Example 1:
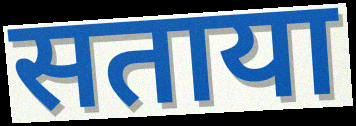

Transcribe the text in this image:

सताया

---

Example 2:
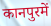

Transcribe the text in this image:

कानपुरमें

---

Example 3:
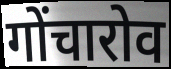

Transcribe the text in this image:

गोंचारोव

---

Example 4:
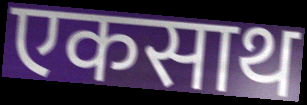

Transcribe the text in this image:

एकसाथ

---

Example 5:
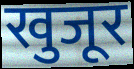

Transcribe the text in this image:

खुजूर